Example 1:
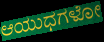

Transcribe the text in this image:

ಆಯುಧಗಳೋ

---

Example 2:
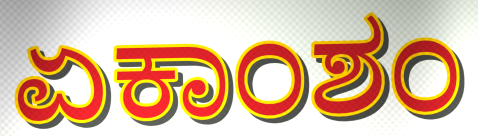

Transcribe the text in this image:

ಏಕಾಂಶಂ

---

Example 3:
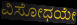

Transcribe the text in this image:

ವಿಸೋಧಯೇ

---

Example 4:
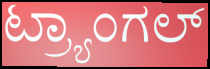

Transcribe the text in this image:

ಟ್ರ್ಯಾಂಗಲ್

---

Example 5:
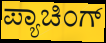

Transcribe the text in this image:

ಪ್ಯಾಚಿಂಗ್